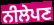
ਨੀਲੇਪਣ